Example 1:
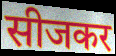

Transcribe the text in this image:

सीजकर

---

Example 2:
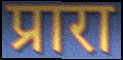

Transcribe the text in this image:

प्रारा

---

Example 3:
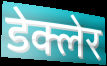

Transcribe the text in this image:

डेक्लेर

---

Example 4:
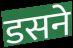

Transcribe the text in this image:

डसने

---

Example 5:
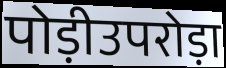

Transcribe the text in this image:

पोड़ीउपरोड़ा